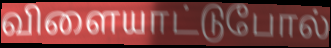
விளையாட்டுபோல்